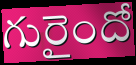
గురైందో